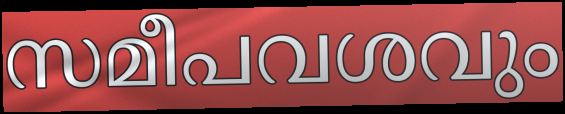
സമീപവശവും